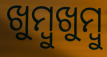
ଖୁମ୍ୱୁଖୁମ୍ବୁ